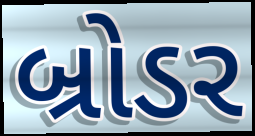
બ્રોડર